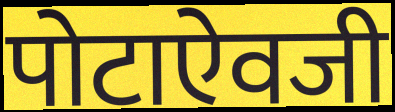
पोटाऐवजी